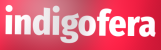
indigofera